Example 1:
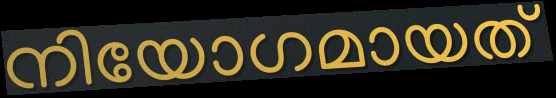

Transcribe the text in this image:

നിയോഗമായത്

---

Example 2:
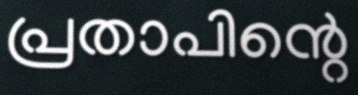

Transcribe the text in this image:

പ്രതാപിന്റെ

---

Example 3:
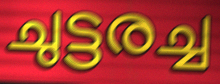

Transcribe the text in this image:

ചുട്ടരച്ച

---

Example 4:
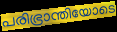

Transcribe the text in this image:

പരിഭ്രാന്തിയോടെ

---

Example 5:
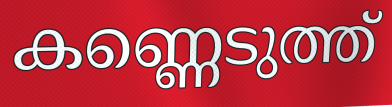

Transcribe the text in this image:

കണ്ണെടുത്ത്